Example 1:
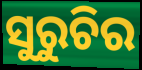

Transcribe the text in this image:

ସୁରୁଚିର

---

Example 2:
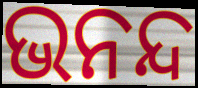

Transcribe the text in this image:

ଭନନ୍ଦ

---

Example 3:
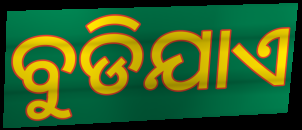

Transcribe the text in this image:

ବୁଡିଯାଏ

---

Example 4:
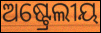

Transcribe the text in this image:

ଅଷ୍ଟ୍ରେଲୀୟ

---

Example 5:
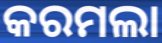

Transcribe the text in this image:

କରମଲା